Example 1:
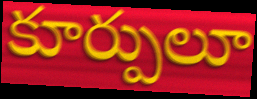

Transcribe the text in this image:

కూర్పులూ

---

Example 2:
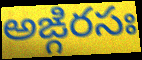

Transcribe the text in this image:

అఙ్గిరసః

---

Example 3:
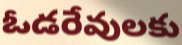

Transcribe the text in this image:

ఓడరేవులకు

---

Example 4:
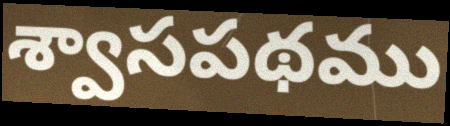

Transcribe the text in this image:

శ్వాసపథము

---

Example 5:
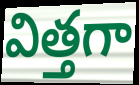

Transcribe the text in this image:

విత్తగా